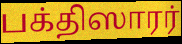
பக்திஸாரர்